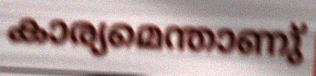
കാര്യമെന്താണു്